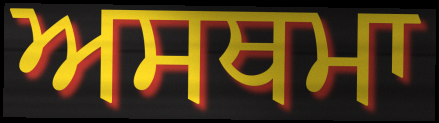
ਅਸਥਮਾ